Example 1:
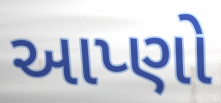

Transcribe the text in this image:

આપ્ણો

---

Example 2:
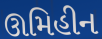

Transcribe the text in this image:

ઊમિહીન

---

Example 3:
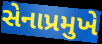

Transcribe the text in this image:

સેનાપ્રમુખે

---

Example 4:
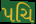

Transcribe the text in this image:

પચિ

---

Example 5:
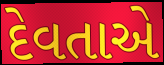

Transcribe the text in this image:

દેવતાએ